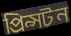
প্ৰিন্সটন